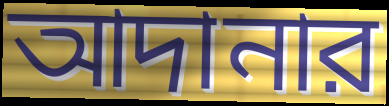
আদানার